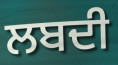
ਲਬਦੀ